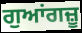
ਗੁਆਂਗਜ਼ੂ